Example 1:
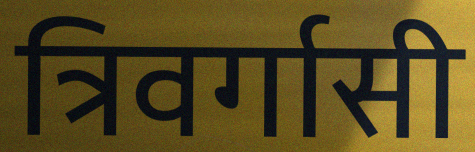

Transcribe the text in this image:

त्रिवर्गासी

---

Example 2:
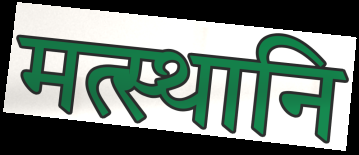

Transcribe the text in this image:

मत्स्थानि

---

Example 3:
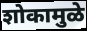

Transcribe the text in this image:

शोकामुळे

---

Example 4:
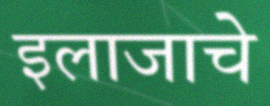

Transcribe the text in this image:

इलाजाचे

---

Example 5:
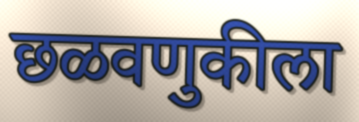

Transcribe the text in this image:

छळवणुकीला